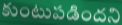
కుంటుపడిందని